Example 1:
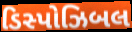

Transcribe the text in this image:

ડિસ્પોઝિબલ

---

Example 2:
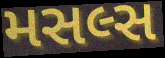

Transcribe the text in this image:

મસલ્સ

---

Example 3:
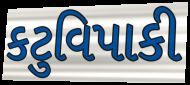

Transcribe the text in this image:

કટુવિપાકી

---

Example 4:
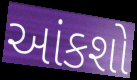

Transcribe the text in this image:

આંકશો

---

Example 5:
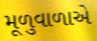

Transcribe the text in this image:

મૂળુવાળાએ